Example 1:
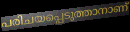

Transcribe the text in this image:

പരിചയപ്പെടുത്താനാണ്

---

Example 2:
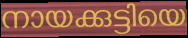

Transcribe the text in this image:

നായക്കുട്ടിയെ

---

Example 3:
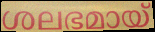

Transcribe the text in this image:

ശലഭമായ്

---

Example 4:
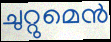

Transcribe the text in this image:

ചുറ്റുമെൻ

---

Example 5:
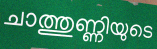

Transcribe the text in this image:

ചാത്തുണ്ണിയുടെ